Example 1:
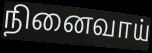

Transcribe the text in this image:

நினைவாய்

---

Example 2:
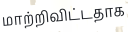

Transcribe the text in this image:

மாற்றிவிட்டதாக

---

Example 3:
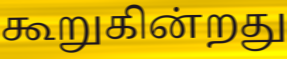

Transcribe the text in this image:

கூறுகின்றது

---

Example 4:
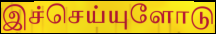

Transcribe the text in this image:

இச்செய்யுளோடு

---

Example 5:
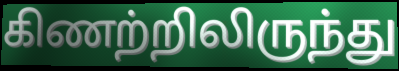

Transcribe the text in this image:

கிணற்றிலிருந்து